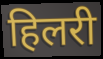
हिलरी